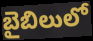
బైబిలులో